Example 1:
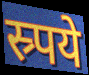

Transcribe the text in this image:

स्र्पये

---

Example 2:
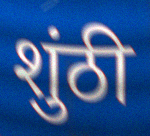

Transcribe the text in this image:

शुंठी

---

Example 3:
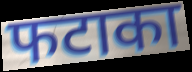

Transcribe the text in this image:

फटाका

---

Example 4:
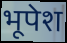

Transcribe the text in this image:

भूपेश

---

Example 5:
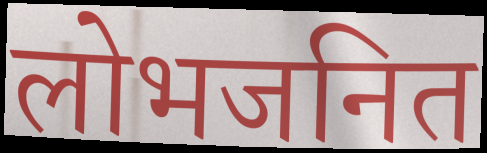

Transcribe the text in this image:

लोभजनित